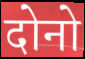
दोनो